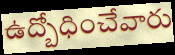
ఉద్బోధించేవారు